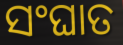
ସଂଘାତ